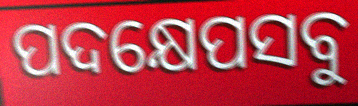
ପଦକ୍ଷେପସବୁ